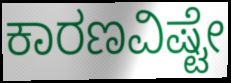
ಕಾರಣವಿಷ್ಟೇ